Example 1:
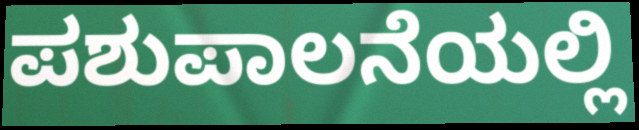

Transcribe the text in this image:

ಪಶುಪಾಲನೆಯಲ್ಲಿ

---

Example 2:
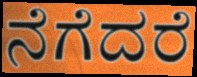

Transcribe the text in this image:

ನೆಗೆದರೆ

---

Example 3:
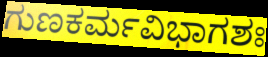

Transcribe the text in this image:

ಗುಣಕರ್ಮವಿಭಾಗಶಃ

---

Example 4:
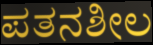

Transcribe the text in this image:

ಪತನಶೀಲ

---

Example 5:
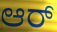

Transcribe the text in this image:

ಆರ್